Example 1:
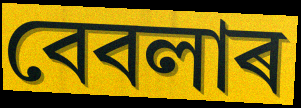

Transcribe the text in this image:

বেবলাৰ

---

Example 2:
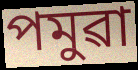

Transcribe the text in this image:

পমুৱা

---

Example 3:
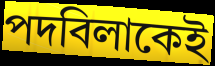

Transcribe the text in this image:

পদবিলাকেই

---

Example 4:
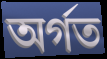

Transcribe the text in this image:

অৰ্গত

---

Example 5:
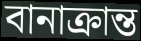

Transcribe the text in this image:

বানাক্ৰান্ত